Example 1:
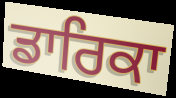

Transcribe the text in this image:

ਡਾਰਿਕਾ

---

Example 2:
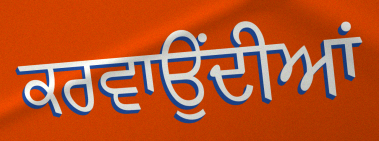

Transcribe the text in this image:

ਕਰਵਾਉਂਦੀਆਂ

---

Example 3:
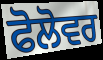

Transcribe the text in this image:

ਫੋਲੋਵਰ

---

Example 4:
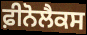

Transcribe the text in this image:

ਫ਼ੀਨੋਲੈਕਸ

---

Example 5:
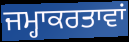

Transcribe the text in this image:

ਜਮ੍ਹਾਕਰਤਾਵਾਂ